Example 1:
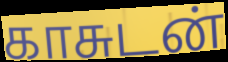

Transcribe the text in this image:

காசுடன்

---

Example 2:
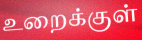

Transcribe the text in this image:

உறைக்குள்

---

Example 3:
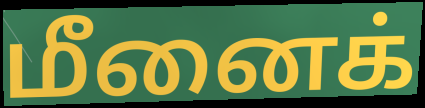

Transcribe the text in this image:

மீனைக்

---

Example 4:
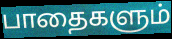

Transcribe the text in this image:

பாதைகளும்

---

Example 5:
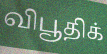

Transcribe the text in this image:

விபூதிக்